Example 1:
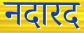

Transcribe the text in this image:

नदारद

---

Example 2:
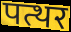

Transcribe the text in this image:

पत्थर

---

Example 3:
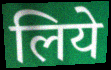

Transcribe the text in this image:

लिये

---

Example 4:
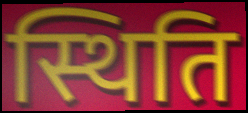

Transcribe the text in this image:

स्थिति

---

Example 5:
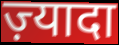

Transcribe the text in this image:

ज़्यादा